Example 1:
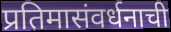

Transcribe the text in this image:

प्रतिमासंवर्धनाची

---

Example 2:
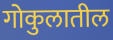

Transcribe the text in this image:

गोकुलातील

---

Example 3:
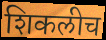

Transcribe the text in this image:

शिकलीच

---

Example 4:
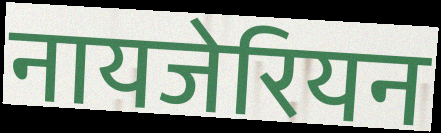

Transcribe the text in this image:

नायजेरियन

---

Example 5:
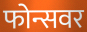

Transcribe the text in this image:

फोन्सवर